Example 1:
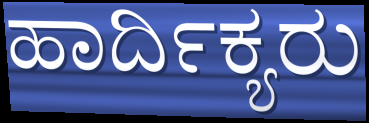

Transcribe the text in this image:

ಹಾರ್ದಿಕ್ಯರು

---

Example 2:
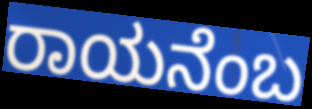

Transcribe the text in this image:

ರಾಯನೆಂಬ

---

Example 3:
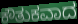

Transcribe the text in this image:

ಕೌತುಕವಾದ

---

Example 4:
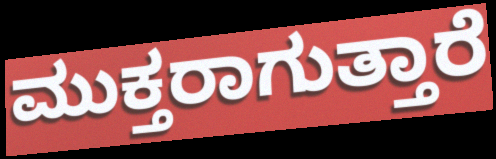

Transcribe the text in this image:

ಮುಕ್ತರಾಗುತ್ತಾರೆ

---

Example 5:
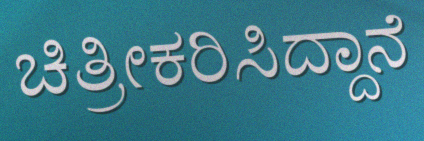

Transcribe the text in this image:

ಚಿತ್ರೀಕರಿಸಿದ್ದಾನೆ